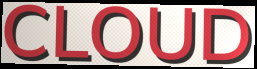
CLOUD